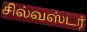
சில்வஸ்டர்